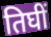
तिघीं